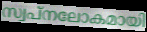
സ്വപ്നലോകമായി